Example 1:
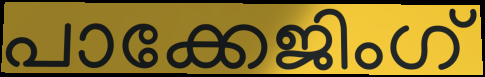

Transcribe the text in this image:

പാക്കേജിംഗ്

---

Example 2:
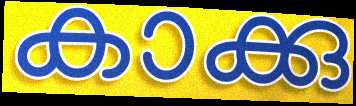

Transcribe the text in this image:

കാക്കു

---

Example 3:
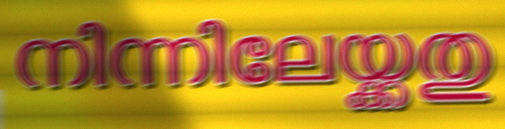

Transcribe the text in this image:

നിന്നിലേയ്ക്കതു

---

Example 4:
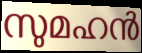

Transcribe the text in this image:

സുമഹൻ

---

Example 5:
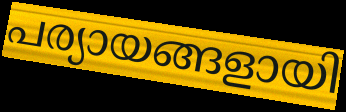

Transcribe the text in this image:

പര്യായങ്ങളായി